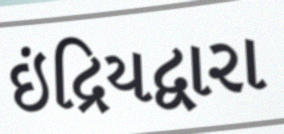
ઇંદ્રિયદ્વારા